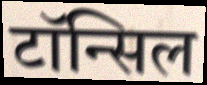
टॉन्सिल